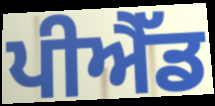
ਪੀਐੱਡ